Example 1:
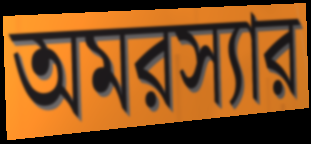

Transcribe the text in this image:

অমরস্যার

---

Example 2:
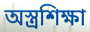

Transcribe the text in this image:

অস্ত্রশিক্ষা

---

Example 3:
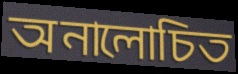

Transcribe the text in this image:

অনালোচিত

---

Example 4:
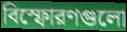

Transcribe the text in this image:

বিস্ফোরণগুলো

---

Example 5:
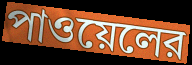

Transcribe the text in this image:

পাওয়েলের